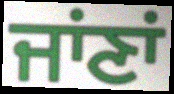
ਜਾਂਣਾਂ